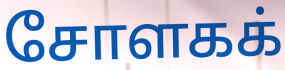
சோளகக்